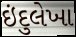
ઇંદુલેખા